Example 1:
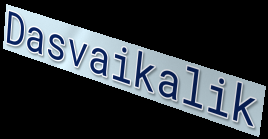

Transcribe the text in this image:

Dasvaikalik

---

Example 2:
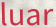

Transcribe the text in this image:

luar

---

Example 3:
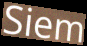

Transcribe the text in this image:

Siem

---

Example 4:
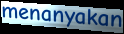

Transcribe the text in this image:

menanyakan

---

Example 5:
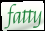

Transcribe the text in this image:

fatty